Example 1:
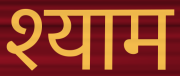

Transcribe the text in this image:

श्‍याम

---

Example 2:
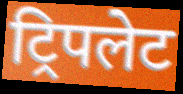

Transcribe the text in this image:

ट्रिपलेट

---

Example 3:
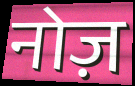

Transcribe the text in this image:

नोज़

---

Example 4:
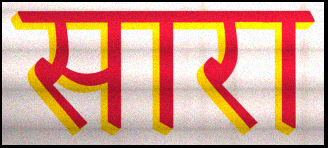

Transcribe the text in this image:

सारा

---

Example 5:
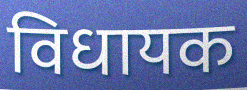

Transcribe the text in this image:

विधायक